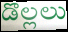
డొల్లలు